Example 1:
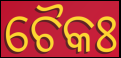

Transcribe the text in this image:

ଚୈକଃ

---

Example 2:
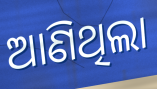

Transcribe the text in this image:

ଆଣିଥିଲା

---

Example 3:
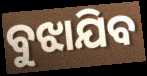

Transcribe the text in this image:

ବୁଝାଯିବ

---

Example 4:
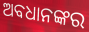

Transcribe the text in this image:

ଅବଧାନଙ୍କର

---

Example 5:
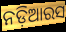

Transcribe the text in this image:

ନଡ଼ିଆରସ